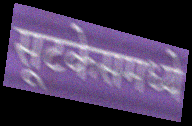
सूटकेसमध्ये